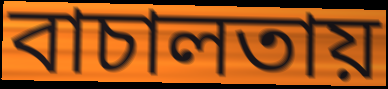
বাচালতায়